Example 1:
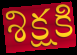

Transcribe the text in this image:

శిక్షకి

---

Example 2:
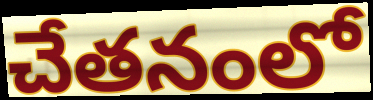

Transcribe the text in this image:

చేతనంలో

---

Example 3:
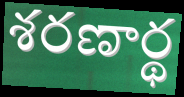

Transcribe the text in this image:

శరణార్థ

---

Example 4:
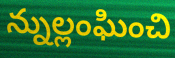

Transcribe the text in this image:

న్నుల్లంఘించి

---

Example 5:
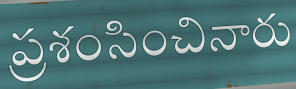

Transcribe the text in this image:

ప్రశంసించినారు